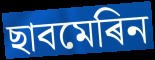
ছাবমেৰিন